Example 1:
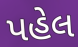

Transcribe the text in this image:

પહેલ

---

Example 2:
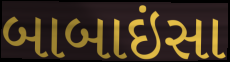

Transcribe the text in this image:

બાબાઇંસા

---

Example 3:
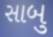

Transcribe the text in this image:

સાબુ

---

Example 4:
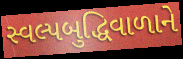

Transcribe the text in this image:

સ્વલ્પબુદ્ધિવાળાને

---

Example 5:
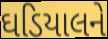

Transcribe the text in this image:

ઘડિયાલને